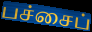
பச்சைப்